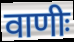
वाणीः